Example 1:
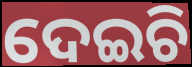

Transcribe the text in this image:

ଦେଇଚି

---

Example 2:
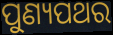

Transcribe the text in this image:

ପୁଣ୍ୟପଥର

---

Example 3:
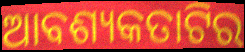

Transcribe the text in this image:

ଆବଶ୍ୟକତାଟିର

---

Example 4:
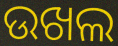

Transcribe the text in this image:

ଉଖଲ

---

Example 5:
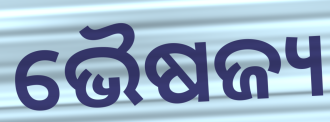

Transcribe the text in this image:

ଭୈଷଜ୍ୟ